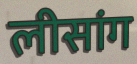
लीसांग